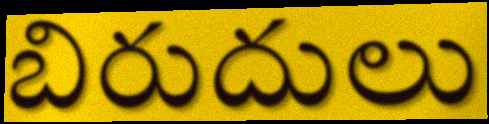
బిరుదులు